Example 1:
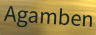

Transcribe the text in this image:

Agamben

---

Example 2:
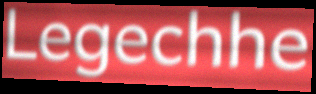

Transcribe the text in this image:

Legechhe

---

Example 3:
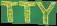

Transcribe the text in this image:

TTY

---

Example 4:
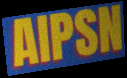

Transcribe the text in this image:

AIPSN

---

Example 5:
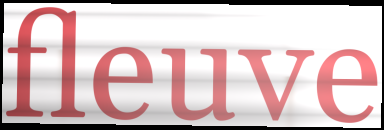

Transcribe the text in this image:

fleuve